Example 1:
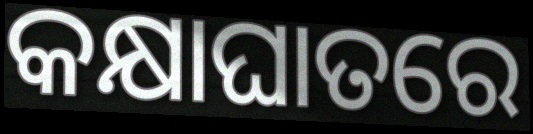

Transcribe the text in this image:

କକ୍ଷାଘାତରେ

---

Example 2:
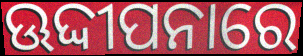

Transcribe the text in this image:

ଊଦ୍ଦୀପନାରେ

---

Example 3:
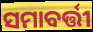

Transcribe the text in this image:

ସମାବର୍ତ୍ତୀ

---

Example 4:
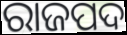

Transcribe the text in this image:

ରାଜପଦ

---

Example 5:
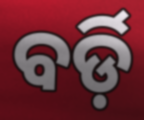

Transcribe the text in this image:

ବର୍ଡ଼ି